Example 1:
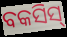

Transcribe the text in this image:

ବକସିସ୍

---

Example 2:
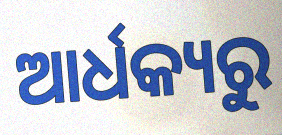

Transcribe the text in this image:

ଆର୍ଧକ୍ୟରୁ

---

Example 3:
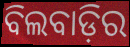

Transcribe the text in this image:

ବିଲବାଡ଼ିର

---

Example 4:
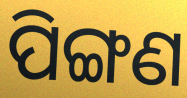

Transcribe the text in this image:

ପିଙ୍ଗଣ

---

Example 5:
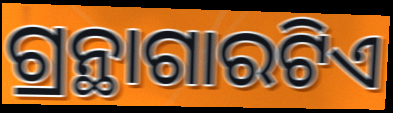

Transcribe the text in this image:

ଗ୍ରନ୍ଥାଗାରଟିଏ